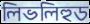
লিভলিহুড